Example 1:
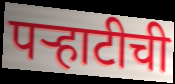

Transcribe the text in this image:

पऱ्हाटीची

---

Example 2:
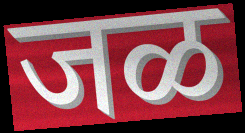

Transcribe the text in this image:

जळ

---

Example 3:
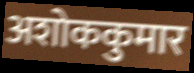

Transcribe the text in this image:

अशोककुमार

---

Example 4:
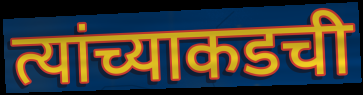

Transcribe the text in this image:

त्यांच्याकडची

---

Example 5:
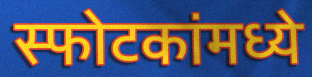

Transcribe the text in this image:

स्फोटकांमध्ये